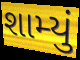
શામ્યું